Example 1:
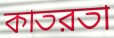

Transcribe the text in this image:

কাতরতা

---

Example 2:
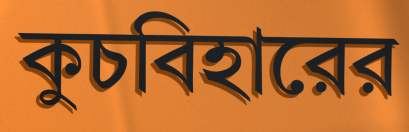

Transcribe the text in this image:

কুচবিহারের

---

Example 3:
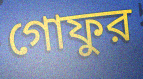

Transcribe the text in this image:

গোফুর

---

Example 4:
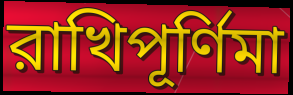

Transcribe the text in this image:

রাখিপূর্ণিমা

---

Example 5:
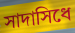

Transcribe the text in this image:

সাদাসিধে